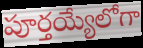
పూర్తయ్యేలోగా